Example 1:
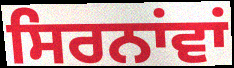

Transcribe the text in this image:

ਸਿਰਨਾਂਵਾਂ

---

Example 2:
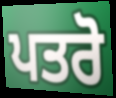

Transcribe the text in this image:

ਪਤਰੋ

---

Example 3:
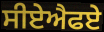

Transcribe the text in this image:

ਸੀਏਐਫਏ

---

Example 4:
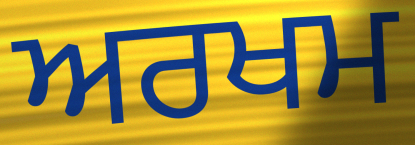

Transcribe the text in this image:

ਅਰਖਮ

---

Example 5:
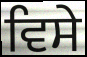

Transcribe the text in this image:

ਵਿਸੇ